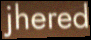
jhered